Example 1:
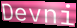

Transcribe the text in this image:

Devni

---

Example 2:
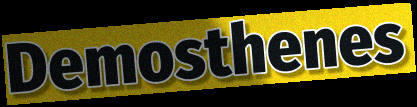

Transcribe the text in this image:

Demosthenes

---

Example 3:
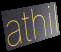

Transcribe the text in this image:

athil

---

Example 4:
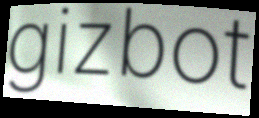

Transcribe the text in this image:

gizbot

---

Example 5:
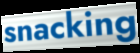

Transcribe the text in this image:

snacking